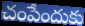
చంపేందుకు